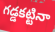
గడ్డకట్టినా